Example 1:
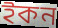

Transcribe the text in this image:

ইকন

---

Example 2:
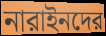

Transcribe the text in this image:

নারাইনদের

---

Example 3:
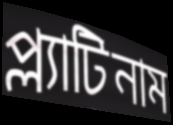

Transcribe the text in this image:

প্ল্যাটিনাম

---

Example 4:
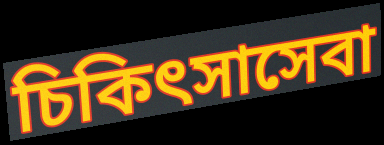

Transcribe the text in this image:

চিকিৎসাসেবা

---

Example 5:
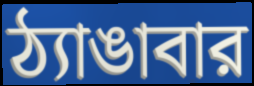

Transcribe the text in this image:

ঠ্যাঙাবার